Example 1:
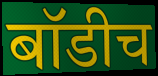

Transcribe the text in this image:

बॉडीच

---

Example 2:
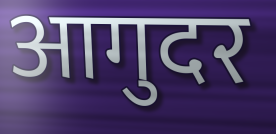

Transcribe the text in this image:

आगुदर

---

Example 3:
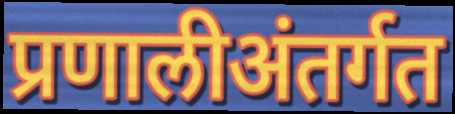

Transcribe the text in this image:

प्रणालीअंतर्गत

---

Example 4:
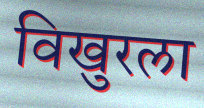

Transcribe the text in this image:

विखुरला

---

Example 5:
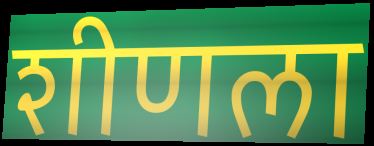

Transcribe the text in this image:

शीणला